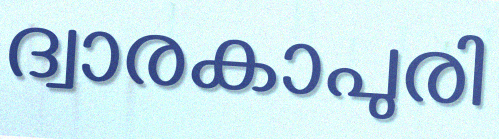
ദ്വാരകാപുരി